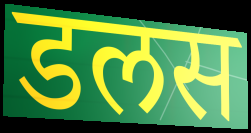
डलस